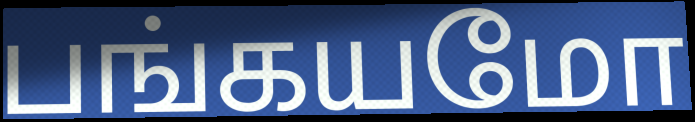
பங்கயமோ